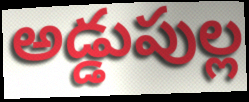
అడ్డుపుల్ల